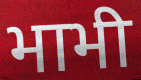
भाभी